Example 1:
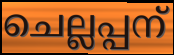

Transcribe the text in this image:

ചെല്ലപ്പന്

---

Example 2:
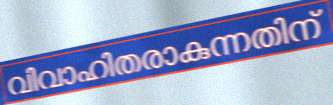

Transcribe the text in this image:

വിവാഹിതരാകുന്നതിന്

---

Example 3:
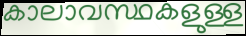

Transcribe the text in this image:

കാലാവസ്ഥകളുള്ള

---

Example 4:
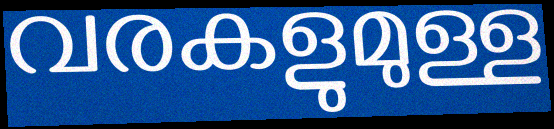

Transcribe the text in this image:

വരകളുമുള്ള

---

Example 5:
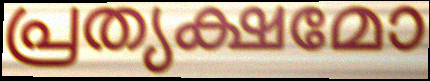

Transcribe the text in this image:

പ്രത്യക്ഷമോ